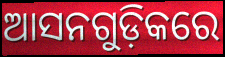
ଆସନଗୁଡ଼ିକରେ